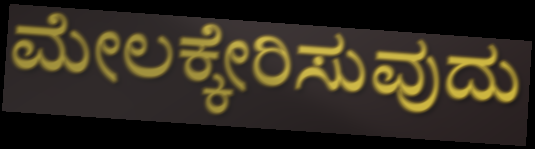
ಮೇಲಕ್ಕೇರಿಸುವುದು